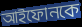
আইফোনকে